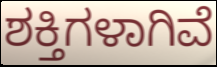
ಶಕ್ತಿಗಳಾಗಿವೆ